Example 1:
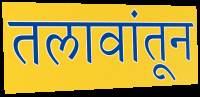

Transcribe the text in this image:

तलावांतून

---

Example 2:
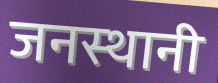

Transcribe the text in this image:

जनस्थानी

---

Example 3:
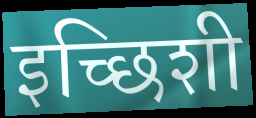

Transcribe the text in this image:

इच्छिशी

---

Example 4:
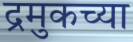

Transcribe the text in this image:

द्रमुकच्या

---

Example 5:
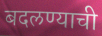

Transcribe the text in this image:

बदलण्याची